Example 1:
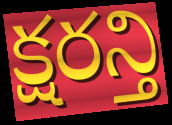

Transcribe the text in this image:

క్షరన్తి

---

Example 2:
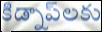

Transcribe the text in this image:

కిడ్నాప్‌లకు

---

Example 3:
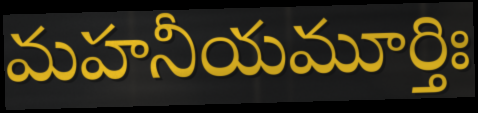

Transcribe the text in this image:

మహనీయమూర్తిః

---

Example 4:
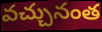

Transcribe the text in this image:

వచ్చునంత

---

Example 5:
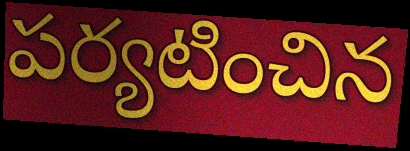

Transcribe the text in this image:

పర్యటించిన